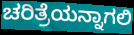
ಚರಿತ್ರೆಯನ್ನಾಗಲಿ